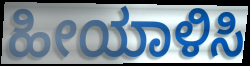
ಹೀಯಾಳಿಸಿ